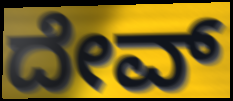
ದೇವ್